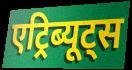
एट्रिब्यूट्स